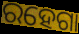
ରହେଗା